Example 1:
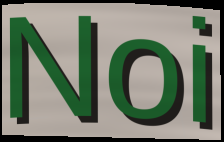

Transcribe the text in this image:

Noi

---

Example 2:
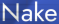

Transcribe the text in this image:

Nake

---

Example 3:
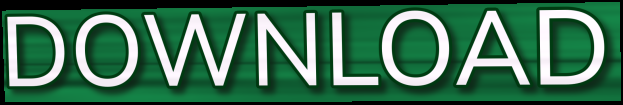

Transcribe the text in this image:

DOWNLOAD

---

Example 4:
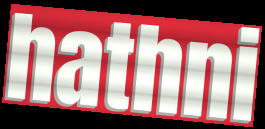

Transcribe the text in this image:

hathni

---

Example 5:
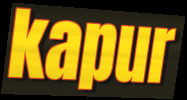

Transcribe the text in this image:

kapur